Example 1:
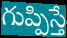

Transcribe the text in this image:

గుప్పిస్తే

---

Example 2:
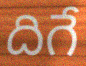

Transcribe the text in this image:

దిగే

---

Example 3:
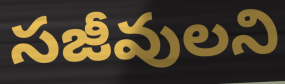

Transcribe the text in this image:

సజీవులని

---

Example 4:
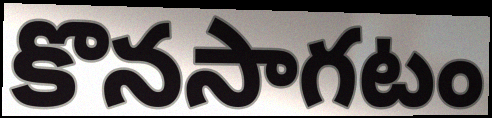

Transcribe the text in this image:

కొనసాగటం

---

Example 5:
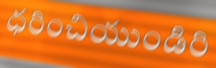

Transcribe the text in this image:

ధరించియుండిరి